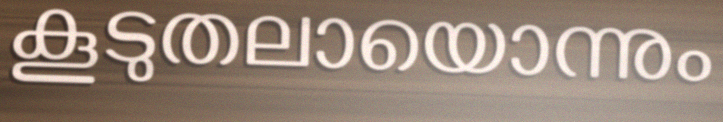
കൂടുതലായൊന്നും